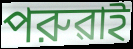
পৰুৱাই